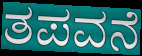
ತಪವನೆ